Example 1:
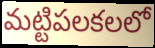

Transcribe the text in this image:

మట్టిపలకలలో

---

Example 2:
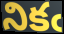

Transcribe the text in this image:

నికఁ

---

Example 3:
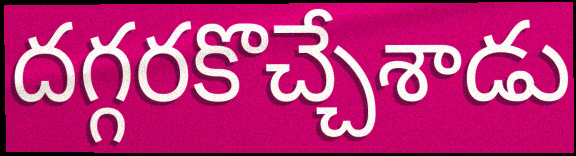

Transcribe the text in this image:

దగ్గరకొచ్చేశాడు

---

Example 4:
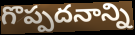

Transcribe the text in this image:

గొప్పదనాన్ని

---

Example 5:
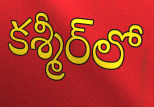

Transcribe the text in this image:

కశ్మీర్‌లో